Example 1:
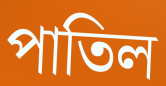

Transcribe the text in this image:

পাতিল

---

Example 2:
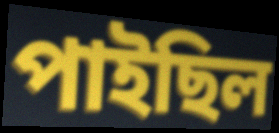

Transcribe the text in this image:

পাইছিল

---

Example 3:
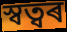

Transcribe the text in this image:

স্বত্বৰ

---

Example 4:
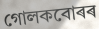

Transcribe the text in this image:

গোলকবোৰৰ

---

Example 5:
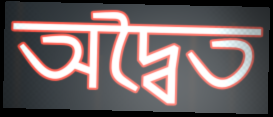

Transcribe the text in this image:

অদ্বৈত